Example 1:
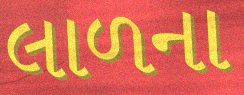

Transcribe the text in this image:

લાળના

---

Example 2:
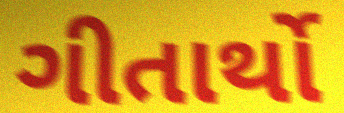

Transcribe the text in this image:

ગીતાર્થો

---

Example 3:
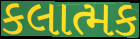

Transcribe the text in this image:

કલાત્મક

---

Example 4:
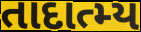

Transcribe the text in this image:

તાદાત્મ્ય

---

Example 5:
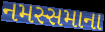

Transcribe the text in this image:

નમસ્સમાના